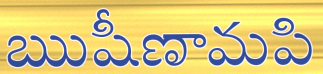
ఋషీణామపి